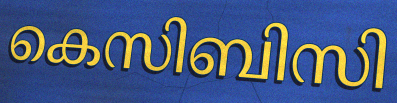
കെസിബിസി